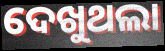
ଦେଖୁଥଲା